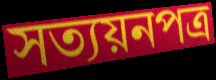
সত্যয়নপত্র